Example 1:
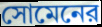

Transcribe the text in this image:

সোমেনের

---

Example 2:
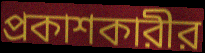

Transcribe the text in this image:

প্রকাশকারীর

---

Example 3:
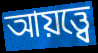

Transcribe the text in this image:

আয়ত্ত্বে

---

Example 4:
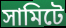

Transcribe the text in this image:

সামিটে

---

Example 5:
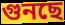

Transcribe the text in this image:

গুনছে